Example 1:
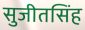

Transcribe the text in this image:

सुजीतसिंह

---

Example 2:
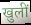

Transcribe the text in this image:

खुलीं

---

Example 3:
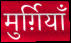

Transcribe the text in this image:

मुर्ग़ियाँ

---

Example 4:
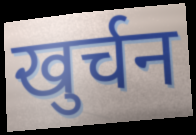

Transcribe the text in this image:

खुर्चन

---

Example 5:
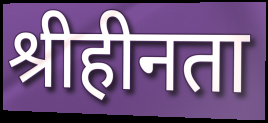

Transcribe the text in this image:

श्रीहीनता